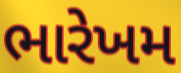
ભારેખમ